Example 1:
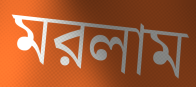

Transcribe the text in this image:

মরলাম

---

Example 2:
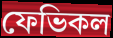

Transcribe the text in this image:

ফেভিকল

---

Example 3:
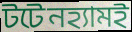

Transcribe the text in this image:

টটেনহ্যামই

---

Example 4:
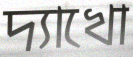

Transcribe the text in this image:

দ্যাখো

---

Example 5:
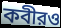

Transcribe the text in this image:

কবীরও